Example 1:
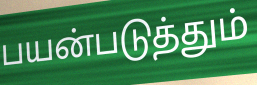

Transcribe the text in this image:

பயன்படுத்தும்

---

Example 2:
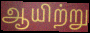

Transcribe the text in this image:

ஆயிற்று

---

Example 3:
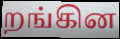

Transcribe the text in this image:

றங்கின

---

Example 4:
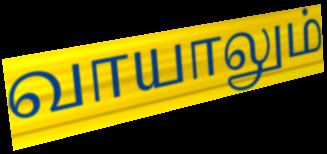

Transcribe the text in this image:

வாயாலும்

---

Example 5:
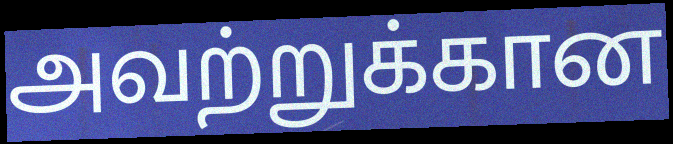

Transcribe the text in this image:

அவற்றுக்கான